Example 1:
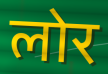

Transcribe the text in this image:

लोर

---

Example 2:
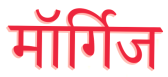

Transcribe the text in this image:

मॉर्गिज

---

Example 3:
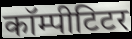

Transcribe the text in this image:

कॉम्पीटिटर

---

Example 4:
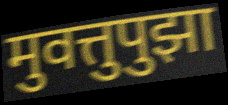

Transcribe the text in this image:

मुवत्तुपुझा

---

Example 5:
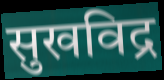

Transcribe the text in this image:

सुखविद्र